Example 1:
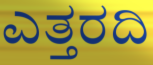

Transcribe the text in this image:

ಎತ್ತರದಿ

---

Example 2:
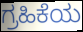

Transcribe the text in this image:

ಗ್ರಹಿಕೆಯ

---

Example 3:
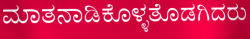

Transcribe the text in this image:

ಮಾತನಾಡಿಕೊಳ್ಳತೊಡಗಿದರು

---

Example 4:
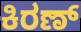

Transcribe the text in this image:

ಕಿರಣ್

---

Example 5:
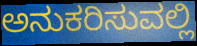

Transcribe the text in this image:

ಅನುಕರಿಸುವಲ್ಲಿ